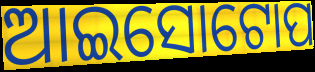
ଆଇସୋଟୋପ